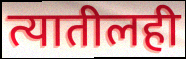
त्यातीलही